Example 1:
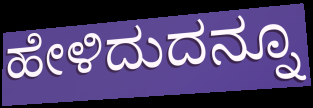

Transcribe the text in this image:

ಹೇಳಿದುದನ್ನೂ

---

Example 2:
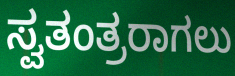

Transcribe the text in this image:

ಸ್ವತಂತ್ರರಾಗಲು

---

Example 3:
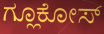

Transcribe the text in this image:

ಗ್ಲೂಕೋಸ್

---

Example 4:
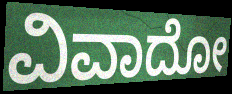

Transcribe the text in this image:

ವಿವಾದೋ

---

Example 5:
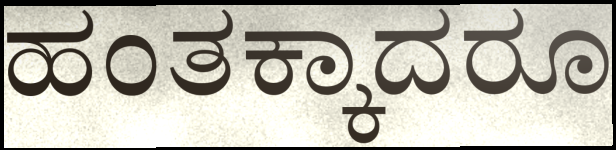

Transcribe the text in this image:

ಹಂತಕ್ಕಾದರೂ